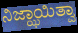
ನಿಜ್ಝಾಯಿತ್ವಾ